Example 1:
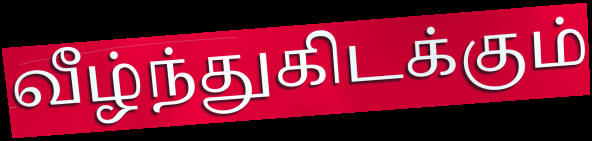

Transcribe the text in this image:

வீழ்ந்துகிடக்கும்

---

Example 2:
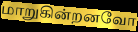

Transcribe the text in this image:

மாறுகின்றனவோ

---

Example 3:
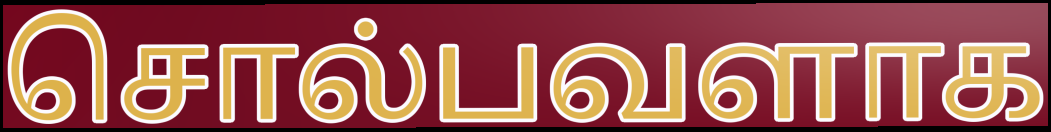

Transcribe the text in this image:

சொல்பவளாக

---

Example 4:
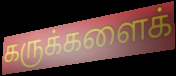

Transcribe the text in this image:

கருக்களைக்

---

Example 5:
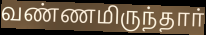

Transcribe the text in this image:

வண்ணமிருந்தார்